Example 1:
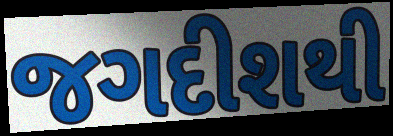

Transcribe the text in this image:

જગદીશથી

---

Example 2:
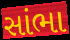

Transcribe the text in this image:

સાંભા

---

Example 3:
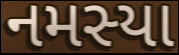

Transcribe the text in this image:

નમસ્યા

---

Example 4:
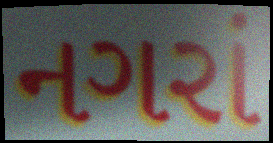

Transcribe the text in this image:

નગરાં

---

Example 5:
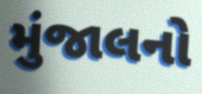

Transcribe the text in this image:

મુંજાલનો